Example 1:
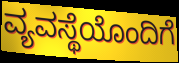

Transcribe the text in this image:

ವ್ಯವಸ್ಥೆಯೊಂದಿಗೆ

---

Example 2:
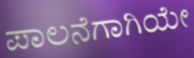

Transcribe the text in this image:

ಪಾಲನೆಗಾಗಿಯೇ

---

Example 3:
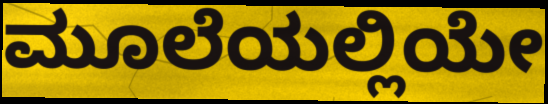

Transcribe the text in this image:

ಮೂಲೆಯಲ್ಲಿಯೇ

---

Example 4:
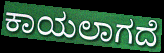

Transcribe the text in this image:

ಕಾಯಲಾಗದೆ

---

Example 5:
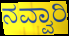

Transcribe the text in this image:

ನವ್ವಾರಿ